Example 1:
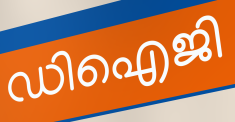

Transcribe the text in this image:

ഡിഐജി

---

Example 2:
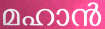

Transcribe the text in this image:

മഹാൻ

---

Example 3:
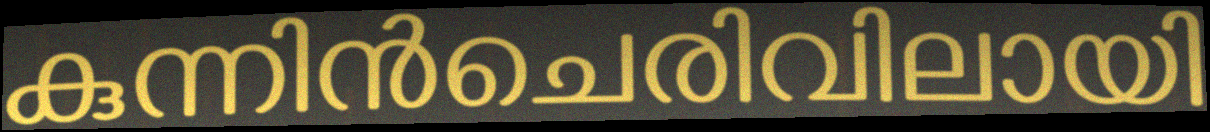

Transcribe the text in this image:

കുന്നിൻചെരിവിലായി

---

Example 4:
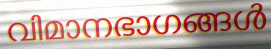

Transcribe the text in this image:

വിമാനഭാഗങ്ങൾ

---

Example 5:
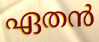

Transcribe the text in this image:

ഏതൻ